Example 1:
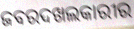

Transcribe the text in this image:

ଜବରଦଖଲକାରୀର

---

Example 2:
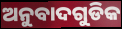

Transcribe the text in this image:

ଅନୁବାଦଗୁଡିକ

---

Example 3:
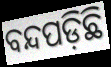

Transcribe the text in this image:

ବନ୍ଦପଡ଼ିଛି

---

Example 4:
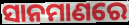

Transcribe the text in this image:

ସାନମାଣରେ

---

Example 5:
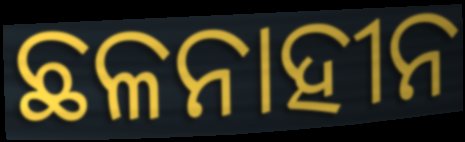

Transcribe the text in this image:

ଛଳନାହୀନ